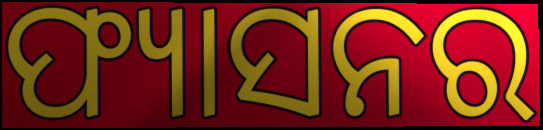
ଫ୍ୟାସନର